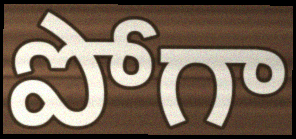
పోగా